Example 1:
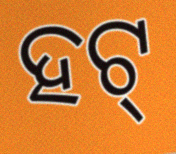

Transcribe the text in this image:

ହଟ୍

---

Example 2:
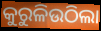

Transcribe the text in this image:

କୁରୁଳିଉଠିଲା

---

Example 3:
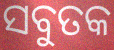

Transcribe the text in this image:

ସବୁତକ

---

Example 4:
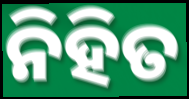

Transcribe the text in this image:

ନିହିତ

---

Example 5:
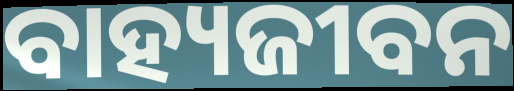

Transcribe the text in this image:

ବାହ୍ୟଜୀବନ